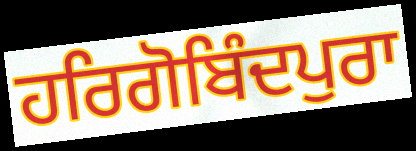
ਹਰਿਗੋਬਿੰਦਪੁਰਾ